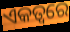
ଏକତ୍ୱରେ